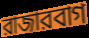
রাজারবাগ